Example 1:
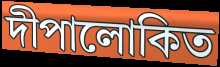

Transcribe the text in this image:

দীপালোকিত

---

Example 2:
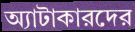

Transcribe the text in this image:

অ্যাটাকারদের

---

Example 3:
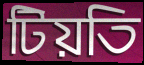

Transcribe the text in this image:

টিয়তি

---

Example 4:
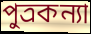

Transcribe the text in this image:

পুত্রকন্যা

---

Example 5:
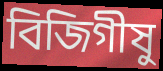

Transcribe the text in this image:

বিজিগীষু